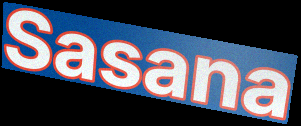
Sasana